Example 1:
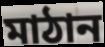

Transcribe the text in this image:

মাঠান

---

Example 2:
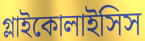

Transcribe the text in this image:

গ্লাইকোলাইসিস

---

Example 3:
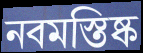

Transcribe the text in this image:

নবমস্তিষ্ক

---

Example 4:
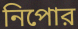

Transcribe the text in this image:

নিপোর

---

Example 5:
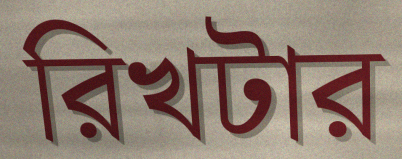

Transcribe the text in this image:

রিখটার